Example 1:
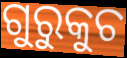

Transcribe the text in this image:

ଗୁରୁକୁଚ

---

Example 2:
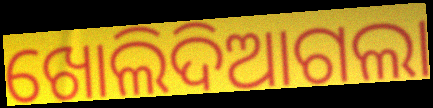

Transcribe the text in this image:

ଖୋଲିଦିଆଗଲା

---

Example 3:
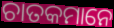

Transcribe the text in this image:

ଚାତକମାନେ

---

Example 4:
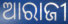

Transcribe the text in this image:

ଆରାଜୀ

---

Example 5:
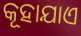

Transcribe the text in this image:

କୂହାଯାଏ